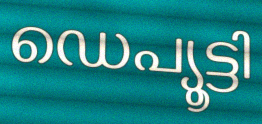
ഡെപ്യൂട്ടി